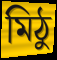
মিঠু